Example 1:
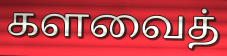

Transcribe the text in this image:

களவைத்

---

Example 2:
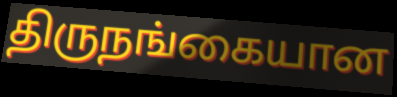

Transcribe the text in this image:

திருநங்கையான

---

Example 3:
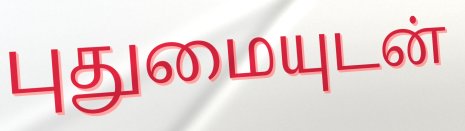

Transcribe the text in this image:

புதுமையுடன்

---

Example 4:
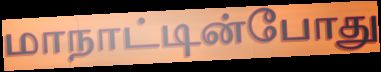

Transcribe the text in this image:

மாநாட்டின்போது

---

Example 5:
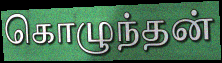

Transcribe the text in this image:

கொழுந்தன்